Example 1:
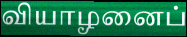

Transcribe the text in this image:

வியாழனைப்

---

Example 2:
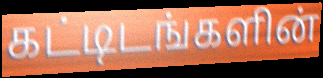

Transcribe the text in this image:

கட்டிடங்களின்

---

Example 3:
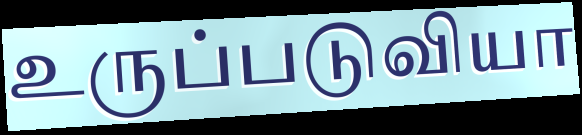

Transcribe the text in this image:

உருப்படுவியா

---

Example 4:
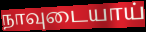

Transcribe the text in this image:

நாவுடையாய்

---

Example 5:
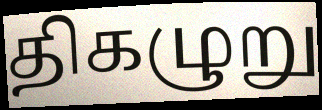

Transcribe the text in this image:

திகழுறு